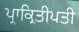
ਪ੍ਰਾਕ੍ਰਿਤੀਪਤੀ